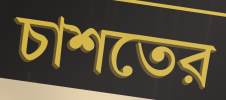
চাশতের